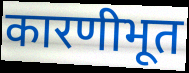
कारणीभूत